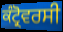
ਕੰਟ੍ਰੋਵਰਸੀ